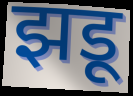
झडू